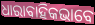
ଧାରାବାହିକଭାବେ